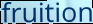
fruition